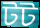
টট